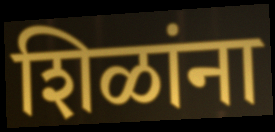
शिळांना